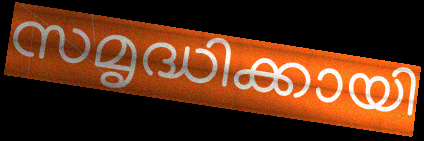
സമൃദ്ധിക്കായി